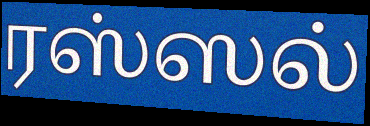
ரஸ்ஸல்